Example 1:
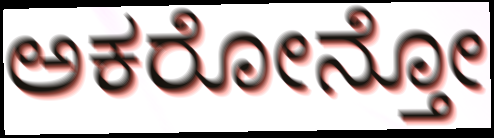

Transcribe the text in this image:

ಅಕರೋನ್ತೋ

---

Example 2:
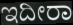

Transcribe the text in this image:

ಇದೀರಾ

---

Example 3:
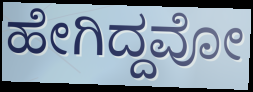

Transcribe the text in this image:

ಹೇಗಿದ್ದವೋ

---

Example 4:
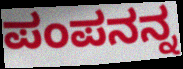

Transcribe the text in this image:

ಪಂಪನನ್ನ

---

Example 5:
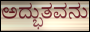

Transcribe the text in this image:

ಅದ್ಭುತವನು